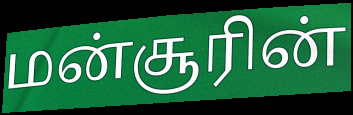
மன்சூரின்